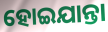
ହୋଇଯାନ୍ତା